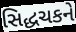
સિદ્ધચકને